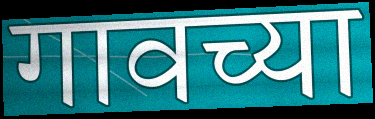
गावच्या